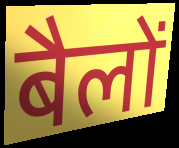
बैलों